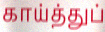
காய்த்துப்